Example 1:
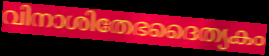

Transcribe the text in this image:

വിനാശിതേഭദൈത്യകം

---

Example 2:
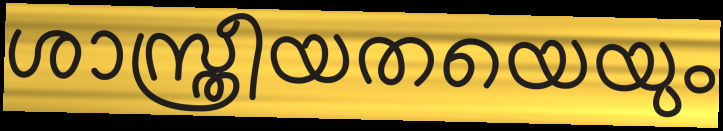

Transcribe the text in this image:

ശാസ്ത്രീയതയെയും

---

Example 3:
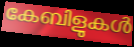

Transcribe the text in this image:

കേബിളുകൾ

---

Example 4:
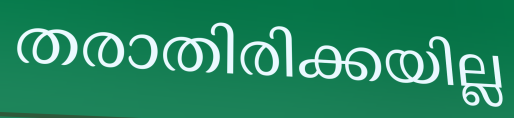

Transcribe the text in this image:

തരാതിരിക്കയില്ല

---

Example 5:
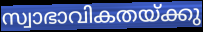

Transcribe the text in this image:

സ്വാഭാവികതയ്ക്കു